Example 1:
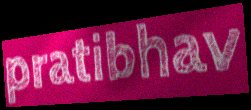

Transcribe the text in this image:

pratibhav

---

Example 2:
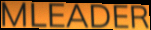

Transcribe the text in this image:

MLEADER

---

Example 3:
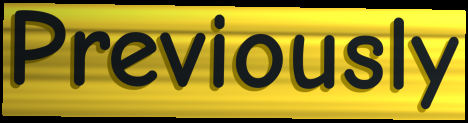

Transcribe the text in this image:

Previously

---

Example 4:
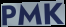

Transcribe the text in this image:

PMK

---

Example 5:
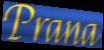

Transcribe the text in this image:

Prana